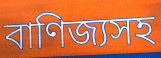
বাণিজ্যসহ